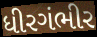
ધીરગંભીર